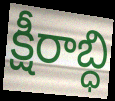
క్షీరాబ్ధి